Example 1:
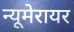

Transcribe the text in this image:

न्यूमेरायर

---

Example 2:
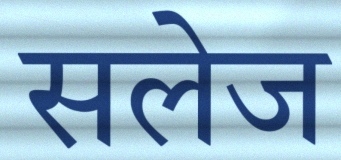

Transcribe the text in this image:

सलेज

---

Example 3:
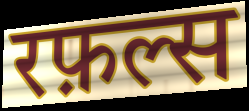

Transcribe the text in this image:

रफ़ल्स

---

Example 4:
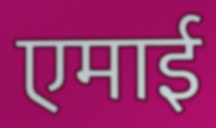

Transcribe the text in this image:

एमाई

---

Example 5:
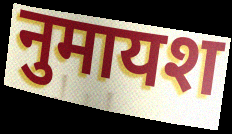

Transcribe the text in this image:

नुमायश